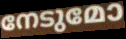
നേടുമോ